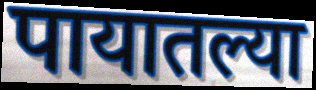
पायातल्या